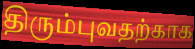
திரும்புவதற்காக